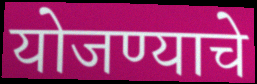
योजण्याचे